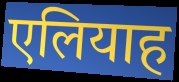
एलियाह